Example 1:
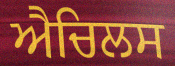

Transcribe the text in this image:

ਐਚਿਲਸ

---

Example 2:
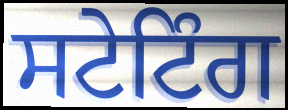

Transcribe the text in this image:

ਸਟੇਟਿੰਗ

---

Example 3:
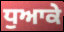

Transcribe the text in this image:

ਧੁਆਕੇ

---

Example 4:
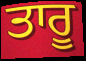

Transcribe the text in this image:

ਤਾਰੂ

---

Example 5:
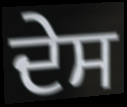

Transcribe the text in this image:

ਦੇਸ